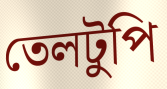
তেলটুপি